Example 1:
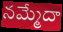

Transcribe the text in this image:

నమ్మేదా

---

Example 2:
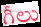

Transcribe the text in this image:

గీలు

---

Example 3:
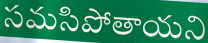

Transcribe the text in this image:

సమసిపోతాయని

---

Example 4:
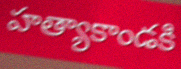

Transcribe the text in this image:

హత్యాకాండకి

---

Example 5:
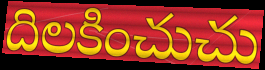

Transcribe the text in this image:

దిలకించుచు